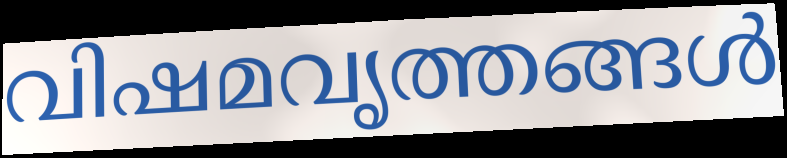
വിഷമവൃത്തങ്ങൾ